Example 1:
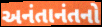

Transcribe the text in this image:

અનંતાનંતનો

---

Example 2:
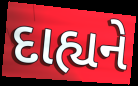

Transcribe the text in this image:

દાહ્યને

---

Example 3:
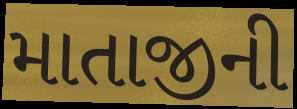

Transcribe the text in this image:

માતાજીની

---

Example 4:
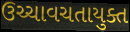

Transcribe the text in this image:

ઉચ્ચાવચતાયુક્ત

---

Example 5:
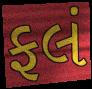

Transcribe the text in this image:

ફલં